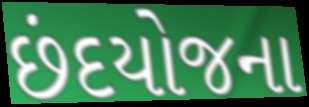
છંદયોજના